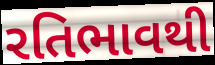
રતિભાવથી